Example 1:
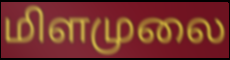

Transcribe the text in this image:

மிளமுலை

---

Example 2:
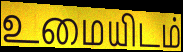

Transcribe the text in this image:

உமையிடம்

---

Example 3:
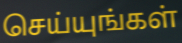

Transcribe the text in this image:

செய்யுங்கள்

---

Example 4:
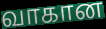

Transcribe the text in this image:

வாகான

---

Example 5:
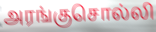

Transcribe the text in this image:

அரங்குசொல்லி